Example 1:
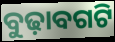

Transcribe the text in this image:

ବୁଢ଼ାବଗଟି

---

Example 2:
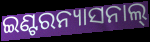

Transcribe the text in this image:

ଇଣ୍ଟରନ୍ୟାସନାଲ୍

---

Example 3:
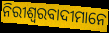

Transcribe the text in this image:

ନିରୀଶ୍ବରବାଦୀମାନେ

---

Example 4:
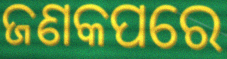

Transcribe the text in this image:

ଜଣକପରେ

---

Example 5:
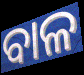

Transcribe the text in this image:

ବାଳ